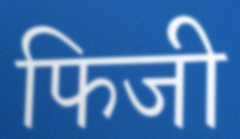
फिजी